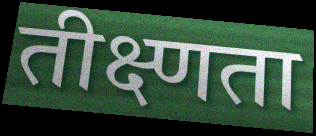
तीक्ष्णता